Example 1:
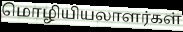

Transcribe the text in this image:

மொழியியலாளர்கள்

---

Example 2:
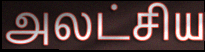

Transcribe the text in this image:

அலட்சிய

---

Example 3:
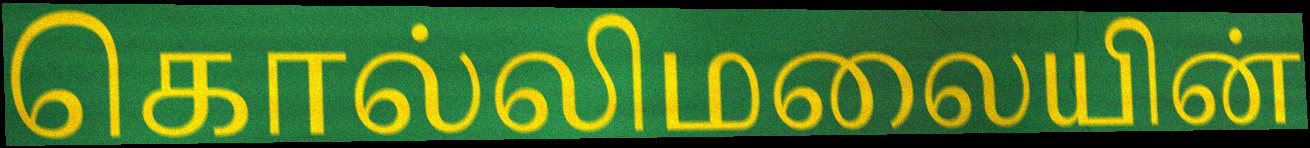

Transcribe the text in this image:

கொல்லிமலையின்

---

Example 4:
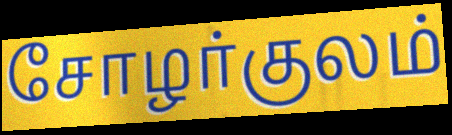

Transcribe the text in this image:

சோழர்குலம்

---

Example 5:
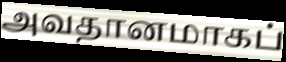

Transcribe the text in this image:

அவதானமாகப்